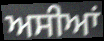
ਅਸੀਆਂ